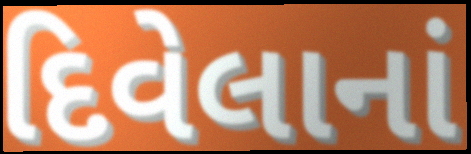
દિવેલાનાં